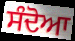
ਸੰਦੋਆ